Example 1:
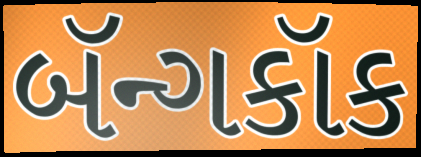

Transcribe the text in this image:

બૅન્ગકૉક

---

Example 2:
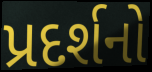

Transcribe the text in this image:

પ્રદર્શનો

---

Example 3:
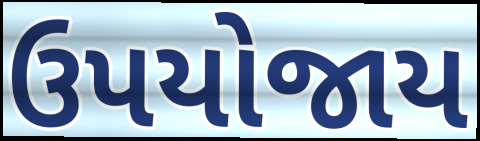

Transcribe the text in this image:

ઉપયોજાય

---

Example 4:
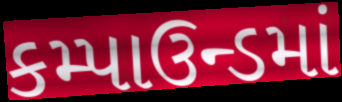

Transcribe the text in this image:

કમ્પાઉન્ડમાં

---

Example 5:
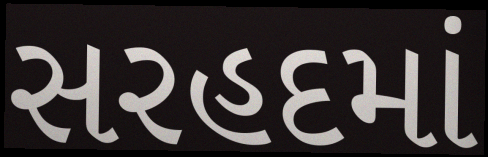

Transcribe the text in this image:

સરહદમાં